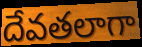
దేవతలాగా